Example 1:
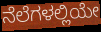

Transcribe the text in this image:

ನೆಲೆಗಳಲ್ಲಿಯೇ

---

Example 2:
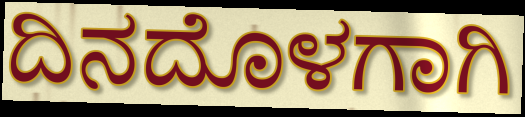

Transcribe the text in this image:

ದಿನದೊಳಗಾಗಿ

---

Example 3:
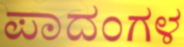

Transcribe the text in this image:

ಪಾದಂಗಳ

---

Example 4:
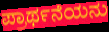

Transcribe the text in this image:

ಪ್ರಾರ್ಥನೆಯನು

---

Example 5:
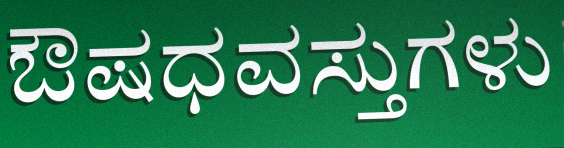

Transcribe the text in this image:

ಔಷಧವಸ್ತುಗಳು